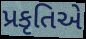
પ્રકૃતિએ